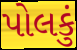
પોલકું